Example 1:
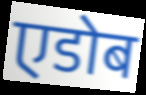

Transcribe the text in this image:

एडोब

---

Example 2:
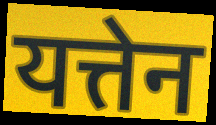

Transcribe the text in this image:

यत्तेन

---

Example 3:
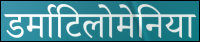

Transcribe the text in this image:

डर्माटिलोमेनिया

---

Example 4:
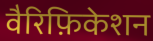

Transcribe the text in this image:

वैरिफ़िकेशन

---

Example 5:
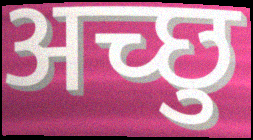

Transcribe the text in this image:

अच्छु